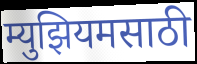
म्युझियमसाठी